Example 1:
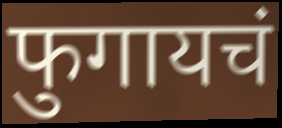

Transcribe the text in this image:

फुगायचं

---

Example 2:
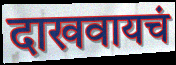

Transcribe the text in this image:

दाखवायचं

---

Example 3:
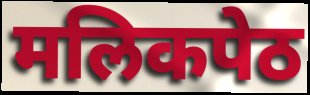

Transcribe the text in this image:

मलिकपेठ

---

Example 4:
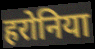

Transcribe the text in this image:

हरोनिया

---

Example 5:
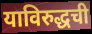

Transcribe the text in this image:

याविरुद्धची